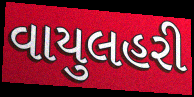
વાયુલહરી